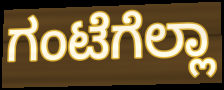
ಗಂಟೆಗೆಲ್ಲಾ